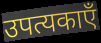
उपत्यकाएँ